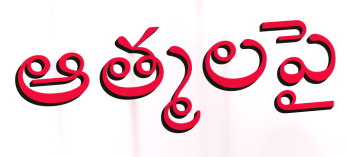
ఆత్మలపై